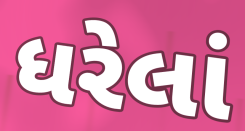
ધરેલાં